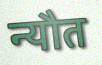
न्यौत